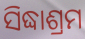
ସିଦ୍ଧାଶ୍ରମ